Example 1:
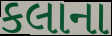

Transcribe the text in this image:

કલાના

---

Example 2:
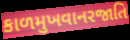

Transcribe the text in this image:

કાળમુખવાનરજાતિ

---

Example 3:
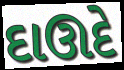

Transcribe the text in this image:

દાઊદે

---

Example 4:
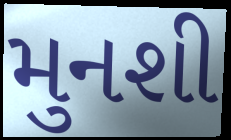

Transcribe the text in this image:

મુનશી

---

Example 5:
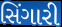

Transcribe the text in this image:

સિંગારી